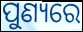
ପୁଣ୍ୟରେ